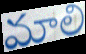
మాలి